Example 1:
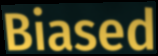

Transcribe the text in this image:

Biased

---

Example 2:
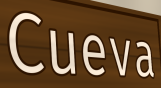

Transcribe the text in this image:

Cueva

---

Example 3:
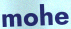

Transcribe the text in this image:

mohe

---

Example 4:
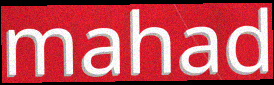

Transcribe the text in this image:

mahad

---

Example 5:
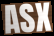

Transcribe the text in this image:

ASX